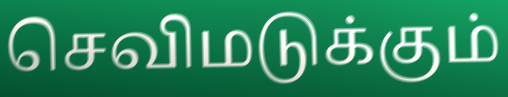
செவிமடுக்கும்